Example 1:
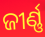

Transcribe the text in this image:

ଜୀର୍ଣ୍ଣ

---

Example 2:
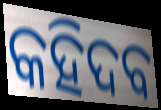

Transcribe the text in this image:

କହିଦବ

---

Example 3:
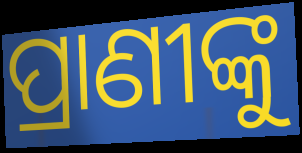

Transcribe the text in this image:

ପ୍ରାଣୀଙ୍କୁ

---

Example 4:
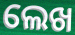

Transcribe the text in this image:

ଲେଖ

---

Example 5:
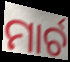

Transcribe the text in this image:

ମାର୍ଚ